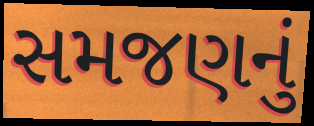
સમજણનું